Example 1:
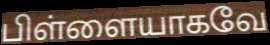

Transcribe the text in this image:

பிள்ளையாகவே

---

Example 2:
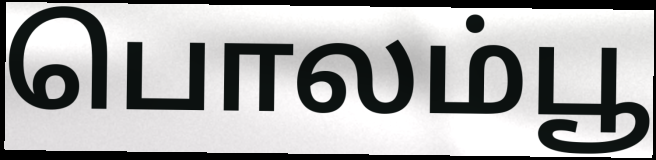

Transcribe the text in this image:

பொலம்பூ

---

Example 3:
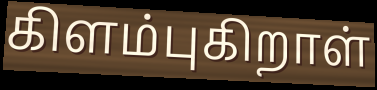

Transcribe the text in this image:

கிளம்புகிறாள்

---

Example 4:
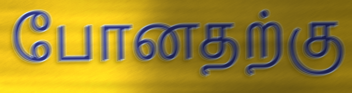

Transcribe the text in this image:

போனதற்கு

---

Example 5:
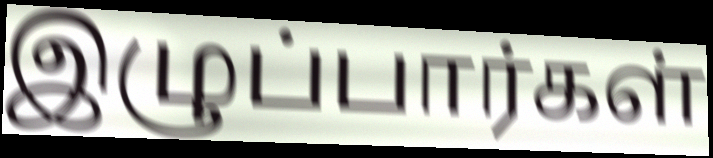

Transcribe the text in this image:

இழுப்பார்கள்